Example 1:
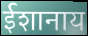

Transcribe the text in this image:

ईशानाय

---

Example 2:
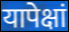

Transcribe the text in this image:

यापेक्षां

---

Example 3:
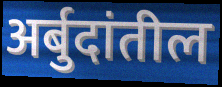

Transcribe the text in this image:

अर्बुदांतील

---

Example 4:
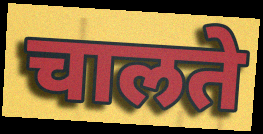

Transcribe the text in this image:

चालते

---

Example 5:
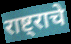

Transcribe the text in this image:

राष्ट्राचे